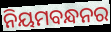
ନିୟମବନ୍ଧନର